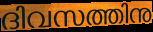
ദിവസത്തിനു